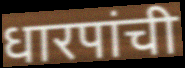
धारपांची